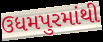
ઉધમપુરમાંથી